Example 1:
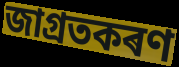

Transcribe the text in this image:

জাগ্ৰতকৰণ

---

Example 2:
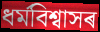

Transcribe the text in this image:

ধৰ্মবিশ্বাসৰ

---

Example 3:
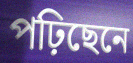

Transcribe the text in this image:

পঢ়িছেনে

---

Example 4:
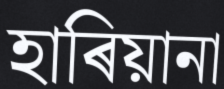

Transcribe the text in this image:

হাৰিয়ানা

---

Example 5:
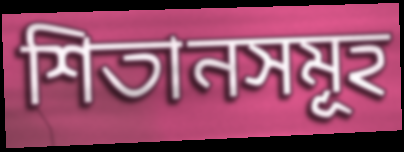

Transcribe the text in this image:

শিতানসমূহ